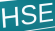
HSE